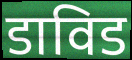
डाविड